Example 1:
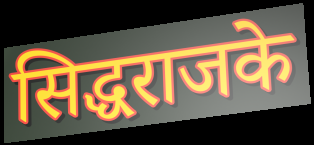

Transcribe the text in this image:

सिद्धराजके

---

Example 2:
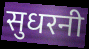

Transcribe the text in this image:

सुधरनी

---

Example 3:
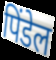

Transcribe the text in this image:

पिंडेल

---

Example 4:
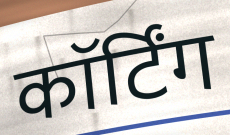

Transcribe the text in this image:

कॉर्टिंग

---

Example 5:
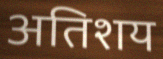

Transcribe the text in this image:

अतिशय